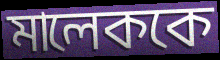
মালেককে